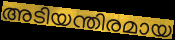
അടിയന്തിരമായ